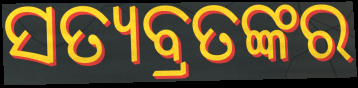
ସତ୍ୟବ୍ରତଙ୍କର